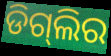
ଡିଗ୍‌ଲିର